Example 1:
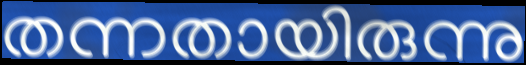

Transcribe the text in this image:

തന്നതായിരുന്നു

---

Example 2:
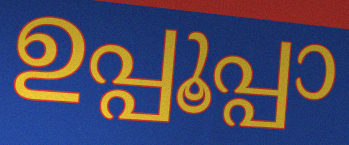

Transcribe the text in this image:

ഉപ്പൂപ്പാ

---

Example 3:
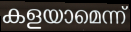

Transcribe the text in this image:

കളയാമെന്ന്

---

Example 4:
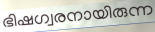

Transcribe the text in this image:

ഭിഷഗ്വരനായിരുന്ന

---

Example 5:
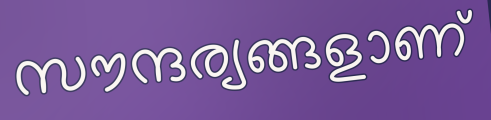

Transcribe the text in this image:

സൗന്ദര്യങ്ങളാണ്